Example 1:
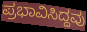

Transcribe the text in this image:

ಪ್ರಭಾವಿಸಿದ್ದವು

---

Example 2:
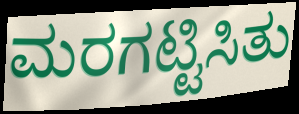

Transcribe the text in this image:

ಮರಗಟ್ಟಿಸಿತು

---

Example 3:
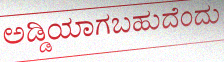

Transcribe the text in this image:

ಅಡ್ಡಿಯಾಗಬಹುದೆಂದು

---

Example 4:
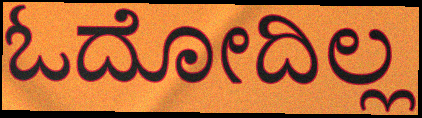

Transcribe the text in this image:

ಓದೋದಿಲ್ಲ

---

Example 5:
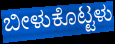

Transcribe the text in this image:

ಬೀಳುಕೊಟ್ಟಳು